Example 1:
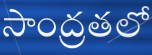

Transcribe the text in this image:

సాంద్రతలో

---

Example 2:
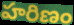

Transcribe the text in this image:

హరిణం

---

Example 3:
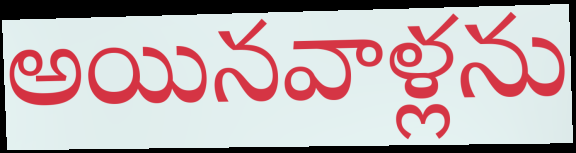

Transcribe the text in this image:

అయినవాళ్లను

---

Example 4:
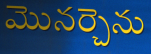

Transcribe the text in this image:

మొనర్చెను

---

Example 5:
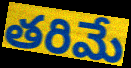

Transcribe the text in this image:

తరిమే